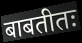
बाबतीतः